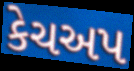
કેચઅપ